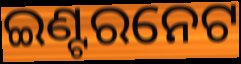
ଇଣ୍ଟରନେଟ